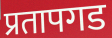
प्रतापगड